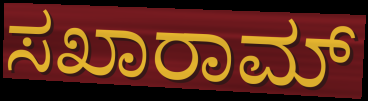
ಸಖಾರಾಮ್